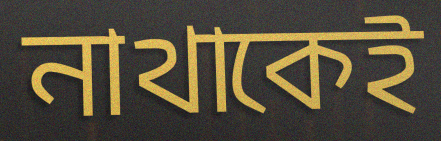
নাথাকেই